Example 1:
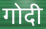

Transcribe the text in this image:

गोदी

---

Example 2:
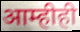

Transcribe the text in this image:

आम्हीही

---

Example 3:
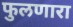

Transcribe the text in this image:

फुलणारा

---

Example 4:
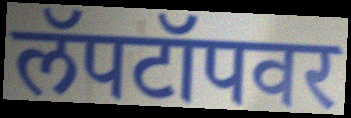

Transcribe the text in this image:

लॅपटॉपवर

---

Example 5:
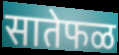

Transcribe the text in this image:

सातेफळ